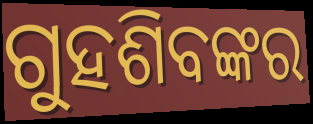
ଗୁହଶିବଙ୍କର